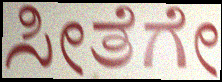
ಸೀತೆಗೇ